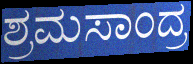
ಶ್ರಮಸಾಂದ್ರ